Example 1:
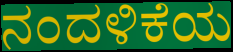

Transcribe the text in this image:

ನಂದಳಿಕೆಯ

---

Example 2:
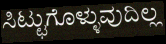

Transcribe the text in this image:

ಸಿಟ್ಟುಗೊಳ್ಳುವುದಿಲ್ಲ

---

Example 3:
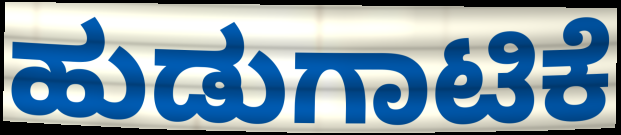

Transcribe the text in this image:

ಹುಡುಗಾಟಿಕೆ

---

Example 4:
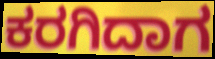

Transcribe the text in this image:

ಕರಗಿದಾಗ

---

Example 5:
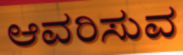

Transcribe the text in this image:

ಆವರಿಸುವ